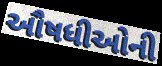
ઔષધીઓની